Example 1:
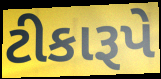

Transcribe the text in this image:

ટીકારૂપે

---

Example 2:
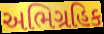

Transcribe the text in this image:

અભિગ્રહિક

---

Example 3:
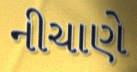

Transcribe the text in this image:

નીચાણે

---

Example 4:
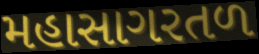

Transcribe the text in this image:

મહાસાગરતળ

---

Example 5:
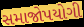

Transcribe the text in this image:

સમાજોપયોગી